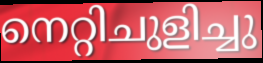
നെറ്റിചുളിച്ചു